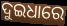
ଦୁଇଧାରେ